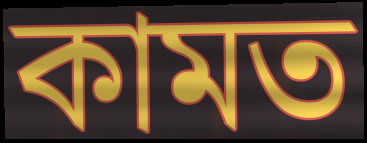
কামত